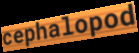
cephalopod